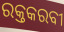
ରକ୍ତକରବୀ